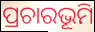
ପ୍ରଚାରଭୂମି